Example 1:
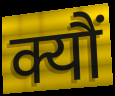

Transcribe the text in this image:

क्यौं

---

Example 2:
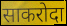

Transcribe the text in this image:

साकरोदा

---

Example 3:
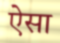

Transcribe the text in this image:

ऐेसा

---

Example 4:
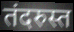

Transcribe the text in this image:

तंदरुस्त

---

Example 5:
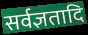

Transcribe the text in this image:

सर्वज्ञतादि